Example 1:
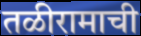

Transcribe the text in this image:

तळीरामाची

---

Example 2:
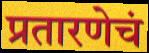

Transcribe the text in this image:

प्रतारणेचं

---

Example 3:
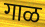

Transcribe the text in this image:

गाळ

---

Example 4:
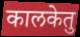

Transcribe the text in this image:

कालकेतु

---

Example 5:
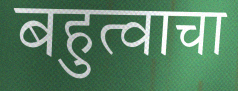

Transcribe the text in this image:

बहुत्वाचा